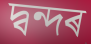
দ্বন্দৰ